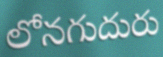
లోనగుదురు